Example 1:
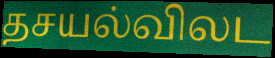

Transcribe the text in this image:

தசயல்விலட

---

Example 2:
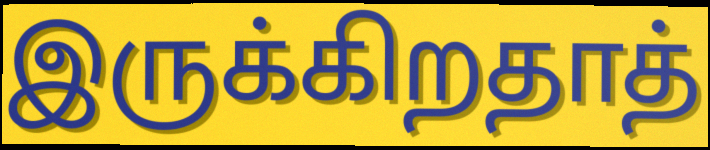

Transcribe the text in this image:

இருக்கிறதாத்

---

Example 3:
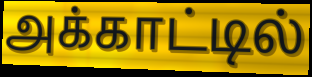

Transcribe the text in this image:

அக்காட்டில்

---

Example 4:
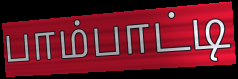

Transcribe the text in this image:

பாம்பாட்டி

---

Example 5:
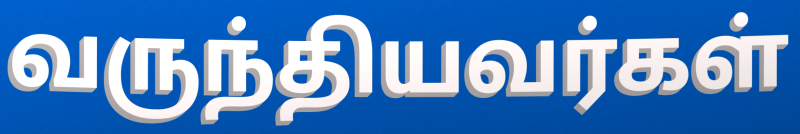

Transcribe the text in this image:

வருந்தியவர்கள்